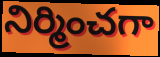
నిర్మించగా